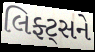
લિફ્ટ્સને